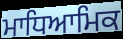
ਮਾਧਿਆਮਿਕ